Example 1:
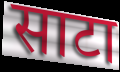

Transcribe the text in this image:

साटा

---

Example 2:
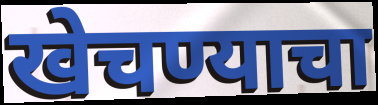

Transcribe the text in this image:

खेचण्याचा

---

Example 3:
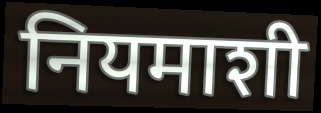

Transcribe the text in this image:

नियमाशी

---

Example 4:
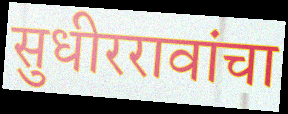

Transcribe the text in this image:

सुधीररावांचा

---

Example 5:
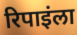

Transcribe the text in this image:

रिपाइंला